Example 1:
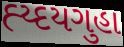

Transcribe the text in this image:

હ્ય્દયગુહા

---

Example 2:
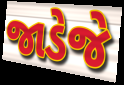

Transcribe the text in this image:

જાડેજે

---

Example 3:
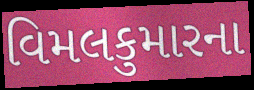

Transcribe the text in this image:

વિમલકુમારના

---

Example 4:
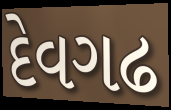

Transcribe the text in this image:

દેવગઢ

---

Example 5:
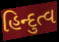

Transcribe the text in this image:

હિન્દુત્વ